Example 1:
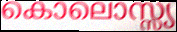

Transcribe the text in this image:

കൊലൊസ്സ്യ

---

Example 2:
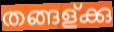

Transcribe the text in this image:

തങ്ങള്ക്കു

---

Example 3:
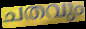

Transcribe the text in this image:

ചതവും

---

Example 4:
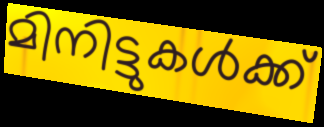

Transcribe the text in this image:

മിനിട്ടുകൾക്ക്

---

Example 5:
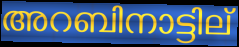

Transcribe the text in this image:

അറബിനാട്ടില്